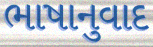
ભાષાનુવાદ